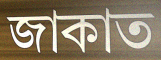
জাকাত